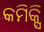
କମିକ୍ସି